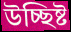
উচ্ছিষ্ট